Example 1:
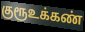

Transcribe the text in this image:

குரூஉக்கண்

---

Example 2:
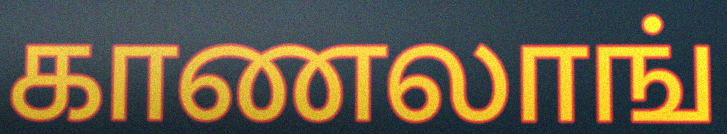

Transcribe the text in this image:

காணலாங்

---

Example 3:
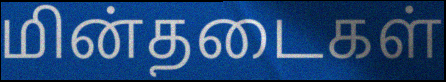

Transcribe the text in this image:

மின்தடைகள்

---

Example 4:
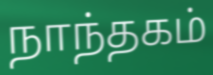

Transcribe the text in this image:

நாந்தகம்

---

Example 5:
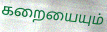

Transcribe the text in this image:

கறையையும்